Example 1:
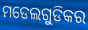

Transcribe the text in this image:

ମଡେଲଗୁଡିକର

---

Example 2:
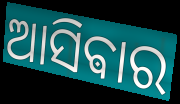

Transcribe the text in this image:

ଆସିଵାର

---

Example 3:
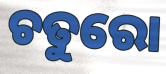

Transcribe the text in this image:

ଚତୁରୋ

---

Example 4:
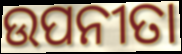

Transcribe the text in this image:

ଉପନୀତା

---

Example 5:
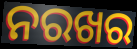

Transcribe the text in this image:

ନରଖର